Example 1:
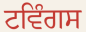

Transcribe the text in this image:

ਟਵਿੰਗਸ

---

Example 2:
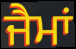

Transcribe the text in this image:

ਜੈਮਾਂ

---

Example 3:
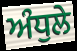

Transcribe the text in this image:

ਅੰਧੁਲੇ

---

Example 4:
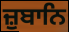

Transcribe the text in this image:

ਜ਼ੁਬਾਨਿ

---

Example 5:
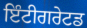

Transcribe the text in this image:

ਇੰਟੀਗਰੇਟਡ